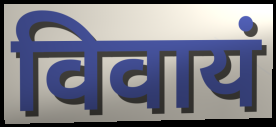
विवायं